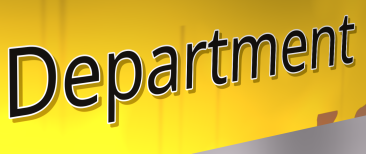
Department